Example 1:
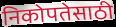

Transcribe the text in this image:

निकोपतेसाठी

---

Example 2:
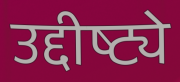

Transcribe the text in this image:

उद्दीष्ट्ये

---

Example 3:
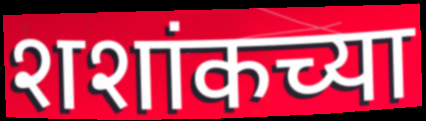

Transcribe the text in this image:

शशांकच्या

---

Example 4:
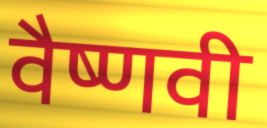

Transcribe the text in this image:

वैष्णवी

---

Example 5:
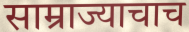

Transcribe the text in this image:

साम्राज्याचाच